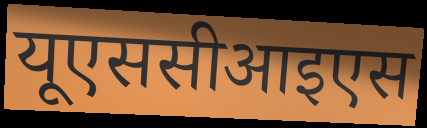
यूएससीआइएस